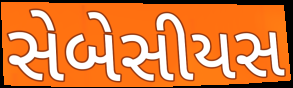
સેબેસીયસ